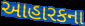
આહારકના